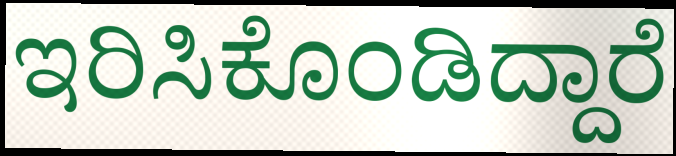
ಇರಿಸಿಕೊಂಡಿದ್ದಾರೆ